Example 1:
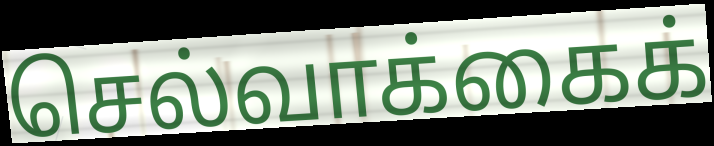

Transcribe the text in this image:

செல்வாக்கைக்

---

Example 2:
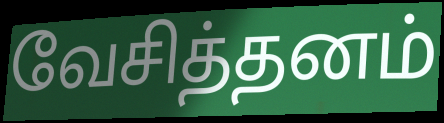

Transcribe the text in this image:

வேசித்தனம்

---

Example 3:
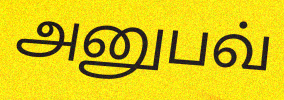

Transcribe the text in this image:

அனுபவ்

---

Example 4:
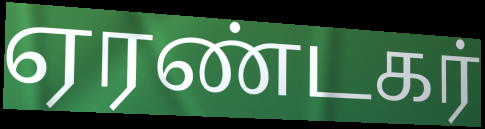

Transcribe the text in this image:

ஏரண்டகர்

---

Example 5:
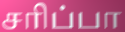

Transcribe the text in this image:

சரிப்பா